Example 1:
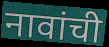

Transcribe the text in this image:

नावांची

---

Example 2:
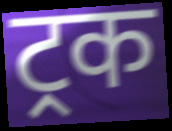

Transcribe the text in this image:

ट्रक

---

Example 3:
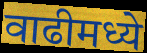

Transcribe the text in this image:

वाढीमध्ये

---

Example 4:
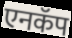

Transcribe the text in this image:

एनकॅप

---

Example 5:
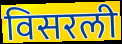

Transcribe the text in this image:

विसरली